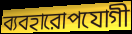
ব্যবহারোপযোগী